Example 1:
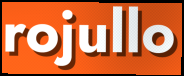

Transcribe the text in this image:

rojullo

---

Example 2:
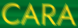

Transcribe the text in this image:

CARA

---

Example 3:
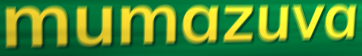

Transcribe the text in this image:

mumazuva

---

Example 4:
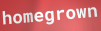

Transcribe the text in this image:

homegrown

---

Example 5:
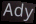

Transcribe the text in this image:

Ady